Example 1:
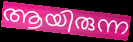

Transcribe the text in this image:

ആയിരുന്ന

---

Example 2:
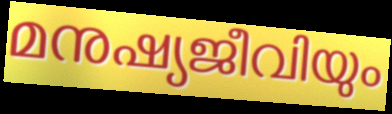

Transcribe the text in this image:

മനുഷ്യജീവിയും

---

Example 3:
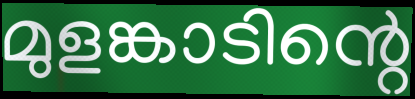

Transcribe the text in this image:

മുളങ്കാടിന്റെ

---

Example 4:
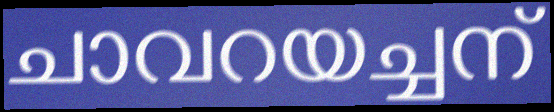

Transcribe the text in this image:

ചാവറയച്ചന്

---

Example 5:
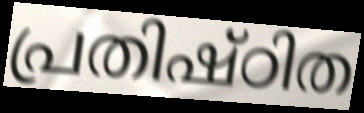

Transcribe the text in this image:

പ്രതിഷ്ഠിത